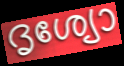
ദൃശ്യോ